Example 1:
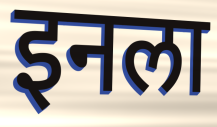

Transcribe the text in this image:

इनला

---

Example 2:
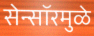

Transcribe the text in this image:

सेन्सॉरमुळे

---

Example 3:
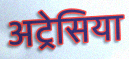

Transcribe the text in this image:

अट्रेसिया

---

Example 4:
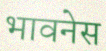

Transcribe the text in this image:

भावनेस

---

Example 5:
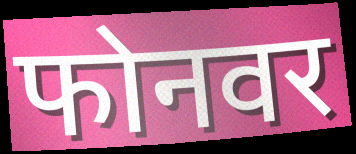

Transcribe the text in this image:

फोनवर